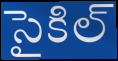
సైకిల్